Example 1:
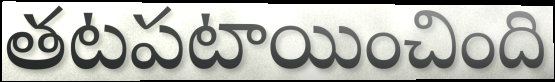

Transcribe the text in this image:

తటపటాయించింది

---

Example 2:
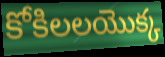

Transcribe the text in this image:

కోకిలలయొక్క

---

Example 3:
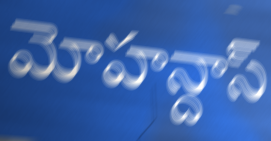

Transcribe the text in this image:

మోహన్దాస్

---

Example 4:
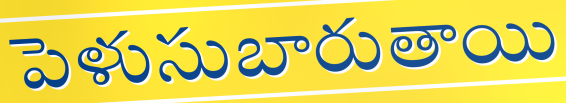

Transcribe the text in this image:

పెళుసుబారుతాయి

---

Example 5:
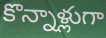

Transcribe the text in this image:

కొన్నాళ్లుగా